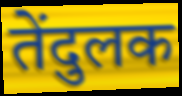
तेंदुलक